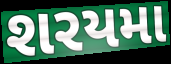
શરયમા